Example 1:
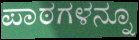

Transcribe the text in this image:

ಪಾಠಗಳನ್ನೂ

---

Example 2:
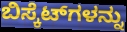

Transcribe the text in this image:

ಬಿಸ್ಕೆಟ್‌ಗಳನ್ನು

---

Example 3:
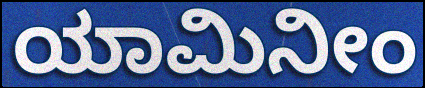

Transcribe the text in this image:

ಯಾಮಿನೀಂ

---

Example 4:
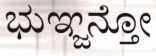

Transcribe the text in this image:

ಭುಞ್ಜನ್ತೋ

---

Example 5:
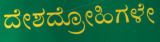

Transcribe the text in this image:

ದೇಶದ್ರೋಹಿಗಳೇ